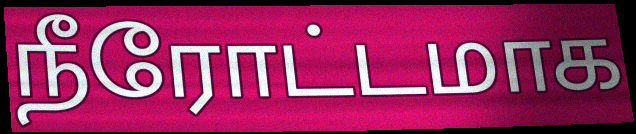
நீரோட்டமாக